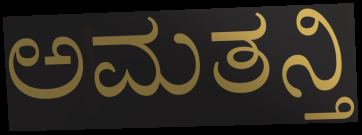
ಅಮತನ್ತಿ